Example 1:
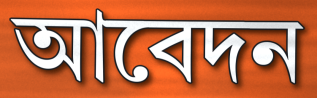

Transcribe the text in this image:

আবেদন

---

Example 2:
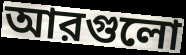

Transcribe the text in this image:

আরগুলো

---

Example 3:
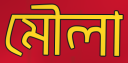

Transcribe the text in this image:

মৌলা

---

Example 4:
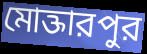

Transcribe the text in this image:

মোক্তারপুর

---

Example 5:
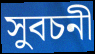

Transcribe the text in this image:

সুবচনী